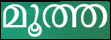
മൂത്ത